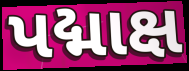
પદ્માક્ષ